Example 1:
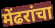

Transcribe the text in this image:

मेंढरांचा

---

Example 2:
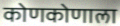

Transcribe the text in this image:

कोणकोणाला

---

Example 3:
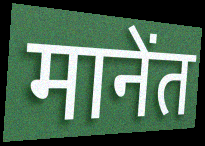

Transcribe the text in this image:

मानेंत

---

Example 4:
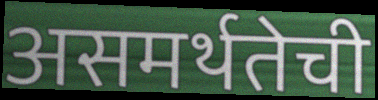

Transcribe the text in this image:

असमर्थतेची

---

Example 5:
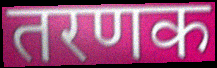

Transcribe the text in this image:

तरणक